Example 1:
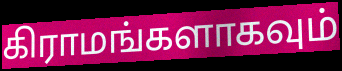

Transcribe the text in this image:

கிராமங்களாகவும்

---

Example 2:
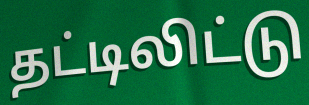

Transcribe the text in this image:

தட்டிலிட்டு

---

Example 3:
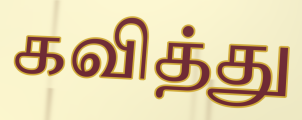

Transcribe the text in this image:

கவித்து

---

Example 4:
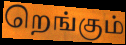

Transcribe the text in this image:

றெங்கும்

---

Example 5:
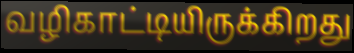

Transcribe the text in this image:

வழிகாட்டியிருக்கிறது